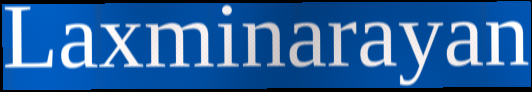
Laxminarayan